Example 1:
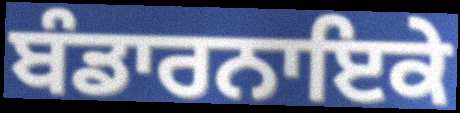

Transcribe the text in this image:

ਬੰਡਾਰਨਾਇਕੇ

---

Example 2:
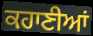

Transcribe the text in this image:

ਕਹਾਣੀਆਂ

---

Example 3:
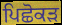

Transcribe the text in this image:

ਪਿਛੋਕੜ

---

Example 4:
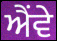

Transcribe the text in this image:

ਐਂਵੇ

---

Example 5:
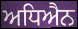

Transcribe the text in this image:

ਅਧਿਐਨ